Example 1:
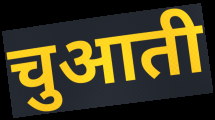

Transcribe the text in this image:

चुआती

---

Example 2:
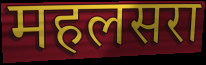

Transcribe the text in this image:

महलसरा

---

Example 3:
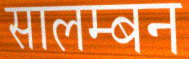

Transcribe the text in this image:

सालम्बन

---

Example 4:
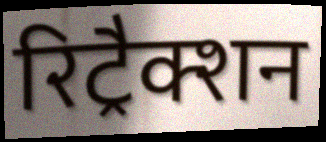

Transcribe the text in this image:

रिट्रैक्शन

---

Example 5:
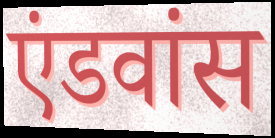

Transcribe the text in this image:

एंडवांस